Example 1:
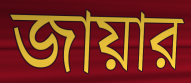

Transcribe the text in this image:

জায়ার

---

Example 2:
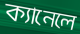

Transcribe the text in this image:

ক্যানেলে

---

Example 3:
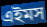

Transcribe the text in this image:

এইমস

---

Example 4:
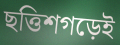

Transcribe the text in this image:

ছত্তিশগড়েই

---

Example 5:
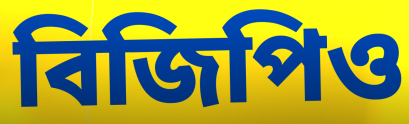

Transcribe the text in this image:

বিজিপিও